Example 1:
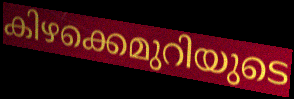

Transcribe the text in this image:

കിഴക്കെമുറിയുടെ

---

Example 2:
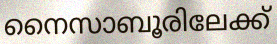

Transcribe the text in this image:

നൈസാബൂരിലേക്ക്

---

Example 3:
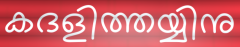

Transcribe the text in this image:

കദളിത്തയ്യിനു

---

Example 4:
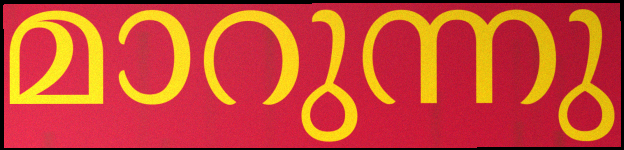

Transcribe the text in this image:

മാറുന്നു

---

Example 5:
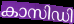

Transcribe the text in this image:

കാസിഡി